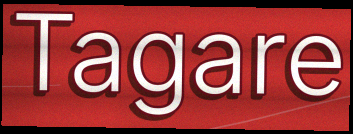
Tagare